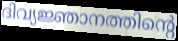
ദിവ്യജ്ഞാനത്തിന്റെ